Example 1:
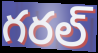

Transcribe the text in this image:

గరల్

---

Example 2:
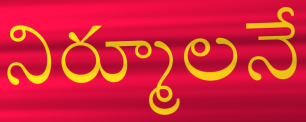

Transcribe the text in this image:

నిర్మూలనే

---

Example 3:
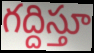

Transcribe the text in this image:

గద్దిస్తూ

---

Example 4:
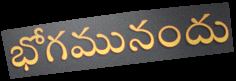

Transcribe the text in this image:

భోగమునందు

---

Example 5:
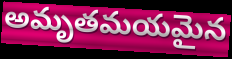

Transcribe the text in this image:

అమృతమయమైన